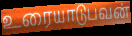
உரையாடுபவன்